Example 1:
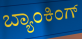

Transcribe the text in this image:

ಬ್ಯಾಂಕಿಂಗ್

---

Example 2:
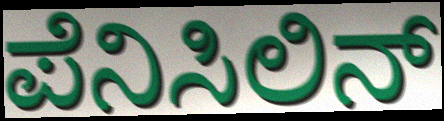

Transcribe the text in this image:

ಪೆನಿಸಿಲಿನ್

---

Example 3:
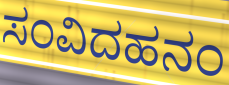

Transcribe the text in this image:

ಸಂವಿದಹನಂ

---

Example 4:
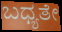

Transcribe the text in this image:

ಬಧ್ಯತೇ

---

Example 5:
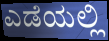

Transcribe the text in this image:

ಎಡೆಯಲ್ಲಿ